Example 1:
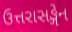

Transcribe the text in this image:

ઉત્તરાસઙ્ગેન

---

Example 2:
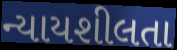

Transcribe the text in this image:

ન્યાયશીલતા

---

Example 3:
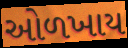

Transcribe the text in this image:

ઓળખાય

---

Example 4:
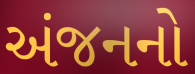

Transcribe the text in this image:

અંજનનો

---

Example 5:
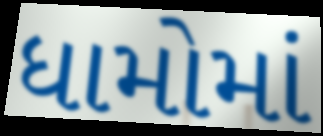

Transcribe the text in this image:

ધામોમાં